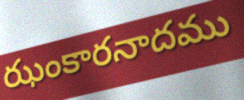
ఝంకారనాదము